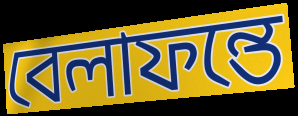
বেলাফন্তে